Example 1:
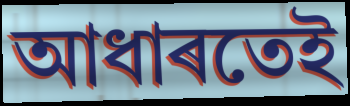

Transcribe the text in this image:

আধাৰতেই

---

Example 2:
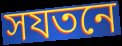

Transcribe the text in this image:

সযতনে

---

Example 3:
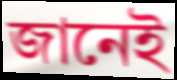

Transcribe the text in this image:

জানেই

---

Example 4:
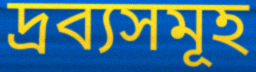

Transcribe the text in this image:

দ্ৰব্যসমূহ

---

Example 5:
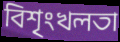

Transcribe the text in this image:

বিশৃংখলতা